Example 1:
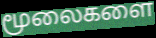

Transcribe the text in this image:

மூலைகளை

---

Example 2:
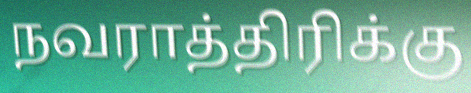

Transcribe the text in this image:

நவராத்திரிக்கு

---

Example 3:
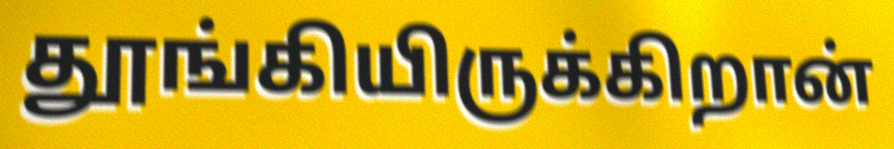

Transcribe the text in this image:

தூங்கியிருக்கிறான்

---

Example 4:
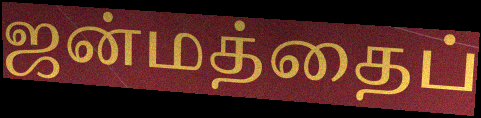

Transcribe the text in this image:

ஜன்மத்தைப்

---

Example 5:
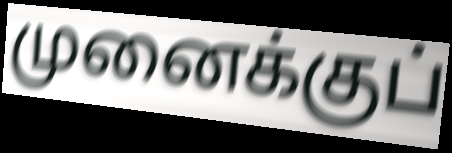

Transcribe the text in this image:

முனைக்குப்